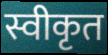
स्वीकृत